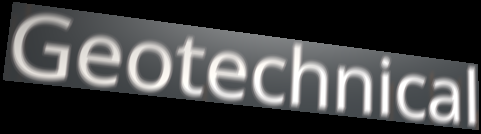
Geotechnical